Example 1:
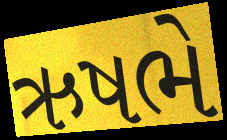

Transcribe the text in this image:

ઋષભે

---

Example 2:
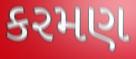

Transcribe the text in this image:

કરમણ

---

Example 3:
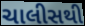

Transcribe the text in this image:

ચાલીસથી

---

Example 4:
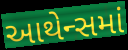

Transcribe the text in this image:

આથેન્સમાં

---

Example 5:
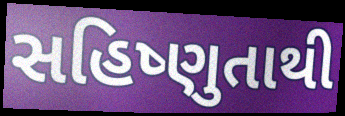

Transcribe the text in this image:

સહિષ્ણુતાથી